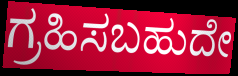
ಗ್ರಹಿಸಬಹುದೇ